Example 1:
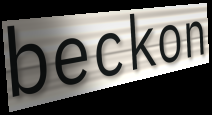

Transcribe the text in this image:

beckon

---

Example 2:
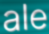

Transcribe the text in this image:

ale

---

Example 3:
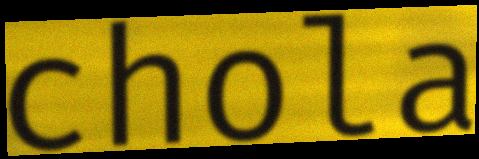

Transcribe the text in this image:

chola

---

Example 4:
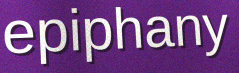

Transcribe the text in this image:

epiphany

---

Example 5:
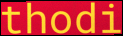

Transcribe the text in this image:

thodi